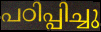
പഠിപ്പിച്ചു